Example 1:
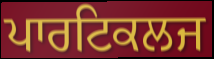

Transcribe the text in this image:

ਪਾਰਟਿਕਲਜ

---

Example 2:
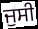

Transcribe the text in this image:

ਜੁਸੀ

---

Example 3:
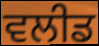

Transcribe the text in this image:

ਵਲੀਡ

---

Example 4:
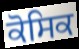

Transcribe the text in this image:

ਕੋਸਿਕ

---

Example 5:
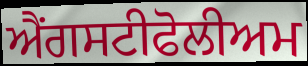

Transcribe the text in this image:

ਐਂਗਸਟੀਫੋਲੀਅਮ